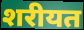
शरीयत